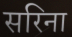
सरिना